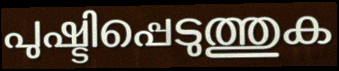
പുഷ്ടിപ്പെടുത്തുക